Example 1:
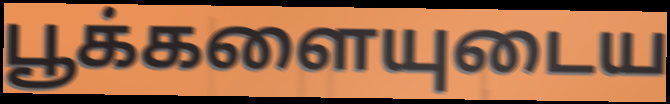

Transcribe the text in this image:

பூக்களையுடைய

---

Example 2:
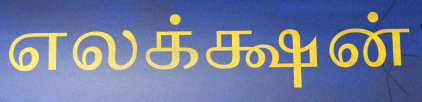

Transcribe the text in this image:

எலக்க்ஷன்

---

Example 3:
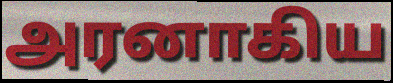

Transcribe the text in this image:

அரனாகிய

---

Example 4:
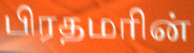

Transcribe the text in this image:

பிரதமரின்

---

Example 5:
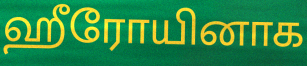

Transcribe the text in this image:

ஹீரோயினாக